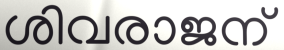
ശിവരാജന്